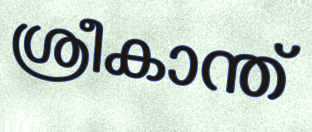
ശ്രീകാന്ത്